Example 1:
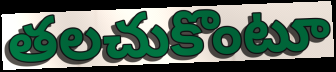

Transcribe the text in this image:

తలచుకొంటూ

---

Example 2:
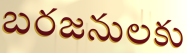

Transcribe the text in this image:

బరజనులకు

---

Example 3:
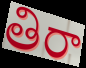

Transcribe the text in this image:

తిరా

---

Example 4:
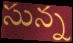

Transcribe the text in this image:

సున్న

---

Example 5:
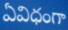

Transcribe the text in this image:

ఏవిధంగా